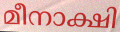
മീനാക്ഷി